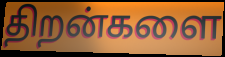
திறன்களை